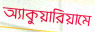
অ্যাকুয়ারিয়ামে